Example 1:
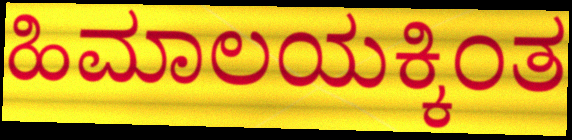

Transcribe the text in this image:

ಹಿಮಾಲಯಕ್ಕಿಂತ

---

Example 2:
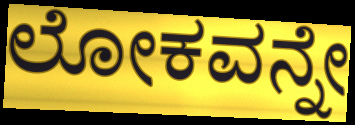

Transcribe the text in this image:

ಲೋಕವನ್ನೇ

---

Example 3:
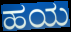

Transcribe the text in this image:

ಹಯ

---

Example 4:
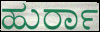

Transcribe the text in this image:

ಹುರ್ರಾ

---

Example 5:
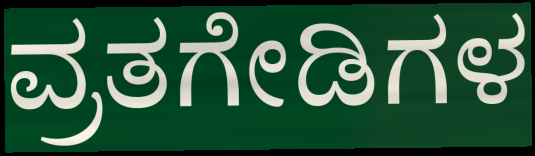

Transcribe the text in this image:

ವ್ರತಗೇಡಿಗಳ